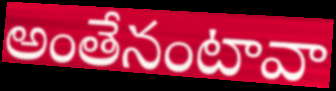
అంతేనంటావా